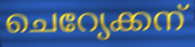
ചെറ്യേക്കന്